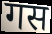
गस